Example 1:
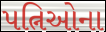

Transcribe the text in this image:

પત્નિઓના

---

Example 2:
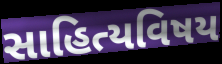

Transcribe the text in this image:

સાહિત્યવિષય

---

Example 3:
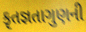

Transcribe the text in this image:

કૃતજ્ઞતાગુણની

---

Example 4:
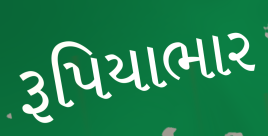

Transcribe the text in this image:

રૂપિયાભાર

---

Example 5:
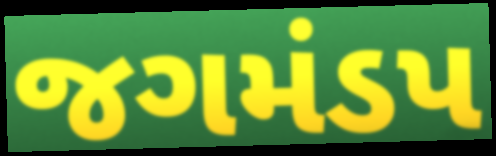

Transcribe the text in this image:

જગમંડપ